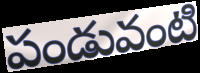
పండువంటి